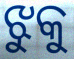
ଝୁକୁ